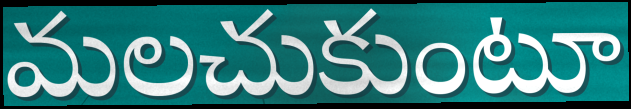
మలచుకుంటూ